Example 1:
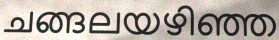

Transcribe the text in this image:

ചങ്ങലയഴിഞ്ഞ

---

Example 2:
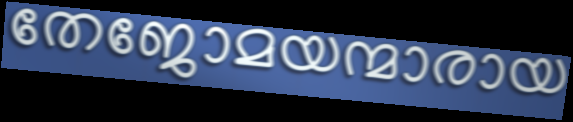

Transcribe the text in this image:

തേജോമയന്മാരായ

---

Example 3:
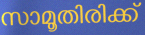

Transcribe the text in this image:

സാമൂതിരിക്ക്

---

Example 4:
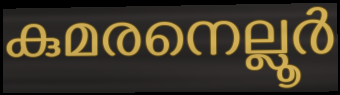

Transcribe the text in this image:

കുമരനെല്ലൂർ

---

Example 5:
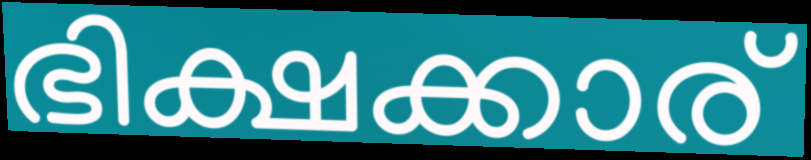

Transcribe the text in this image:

ഭിക്ഷക്കാര്